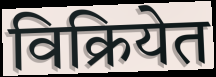
विक्रियेत